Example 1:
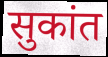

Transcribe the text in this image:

सुकांत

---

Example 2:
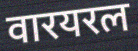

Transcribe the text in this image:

वारयरल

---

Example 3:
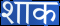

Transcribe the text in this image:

शाक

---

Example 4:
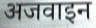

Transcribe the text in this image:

अजवाइन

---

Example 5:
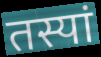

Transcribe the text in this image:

तस्यां